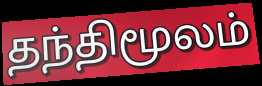
தந்திமூலம்